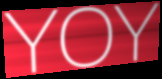
YOY